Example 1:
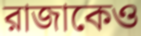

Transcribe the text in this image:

রাজাকেও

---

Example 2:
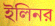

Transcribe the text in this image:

ইলিনর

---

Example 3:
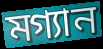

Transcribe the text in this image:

মগ্যান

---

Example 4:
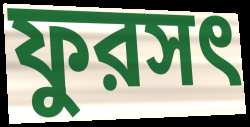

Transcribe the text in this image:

ফুরসৎ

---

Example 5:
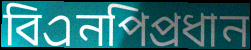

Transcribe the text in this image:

বিএনপিপ্রধান